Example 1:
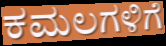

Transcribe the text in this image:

ಕಮಲಗಳಿಗೆ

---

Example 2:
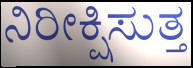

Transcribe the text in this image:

ನಿರೀಕ್ಷಿಸುತ್ತ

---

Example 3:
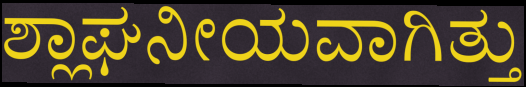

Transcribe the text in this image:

ಶ್ಲಾಘನೀಯವಾಗಿತ್ತು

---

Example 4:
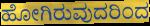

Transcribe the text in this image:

ಹೋಗಿರುವುದರಿಂದ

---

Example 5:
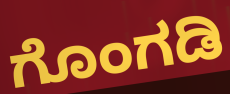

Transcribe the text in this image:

ಗೊಂಗಡಿ